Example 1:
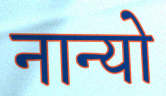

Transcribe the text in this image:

नान्यो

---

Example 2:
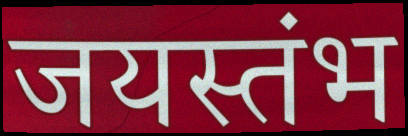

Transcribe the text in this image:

जयस्तंभ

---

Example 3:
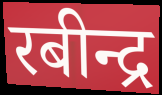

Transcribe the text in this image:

रबीन्द्र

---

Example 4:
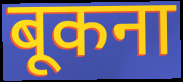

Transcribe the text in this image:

बूकना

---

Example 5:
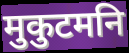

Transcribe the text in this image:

मुकुटमनि